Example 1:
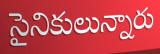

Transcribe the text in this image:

సైనికులున్నారు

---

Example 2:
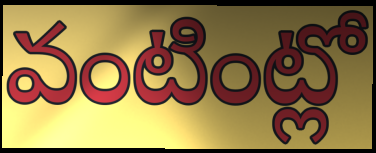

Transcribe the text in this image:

వంటింట్లో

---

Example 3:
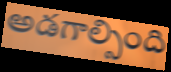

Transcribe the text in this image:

అడగాల్సింది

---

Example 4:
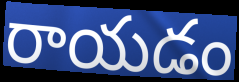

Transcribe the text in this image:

రాయడం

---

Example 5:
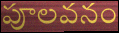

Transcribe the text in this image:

పూలవనం